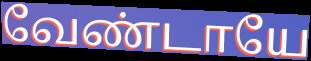
வேண்டாயே